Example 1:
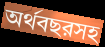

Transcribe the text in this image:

অর্থবছরসহ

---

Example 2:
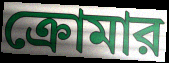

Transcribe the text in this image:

ক্রোমার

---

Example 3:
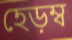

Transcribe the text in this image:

হেড়ম্ব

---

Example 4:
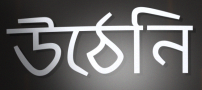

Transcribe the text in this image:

উঠেনি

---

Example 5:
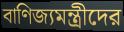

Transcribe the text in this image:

বাণিজ্যমন্ত্রীদের